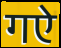
गऐ